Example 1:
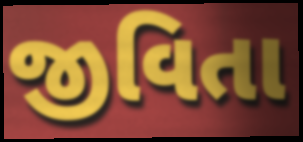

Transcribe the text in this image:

જીવિતા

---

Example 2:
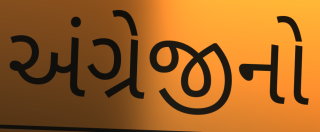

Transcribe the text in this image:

અંગ્રેજીનો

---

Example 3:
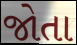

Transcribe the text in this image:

જોતા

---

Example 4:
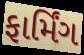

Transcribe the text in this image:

ફાર્મિંગ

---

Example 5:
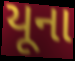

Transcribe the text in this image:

યૂના